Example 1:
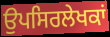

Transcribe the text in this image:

ਉਪਸਿਰਲੇਖਕਾਂ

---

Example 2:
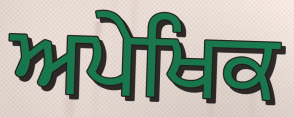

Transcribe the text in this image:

ਅਪੇਖਿਕ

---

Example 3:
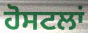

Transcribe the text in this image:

ਹੋਸਟਲਾਂ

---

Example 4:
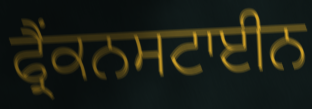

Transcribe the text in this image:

ਫ੍ਰੈਂਕਨਸਟਾਈਨ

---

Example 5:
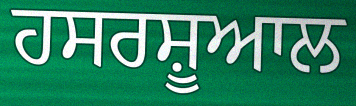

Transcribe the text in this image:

ਹਸਰਸ਼ੂਆਲ